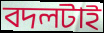
বদলটাই